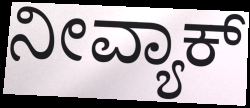
ನೀವ್ಯಾಕ್